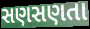
સણસણતા